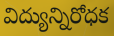
విద్యున్నిరోధక